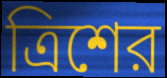
ত্রিশের